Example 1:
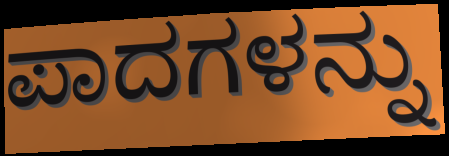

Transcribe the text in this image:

ಪಾದಗಳನ್ನು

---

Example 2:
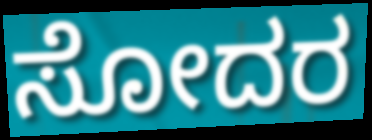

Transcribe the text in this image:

ಸೋದರ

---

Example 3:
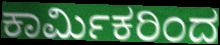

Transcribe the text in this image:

ಕಾರ್ಮಿಕರಿಂದ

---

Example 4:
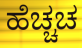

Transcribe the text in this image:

ಹೆಚ್ಚಚ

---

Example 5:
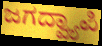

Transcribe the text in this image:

ಜಗದ್ವ್ಯಾಪಿ